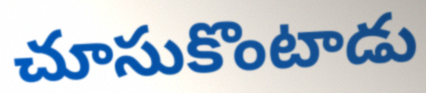
చూసుకొంటాడు